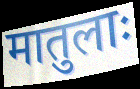
मातुलाः